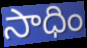
సాధిం